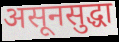
असूनसुद्धा